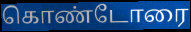
கொண்டோரை